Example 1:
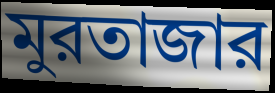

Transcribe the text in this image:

মুরতাজার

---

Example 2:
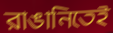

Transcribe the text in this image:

রাঙানিতেই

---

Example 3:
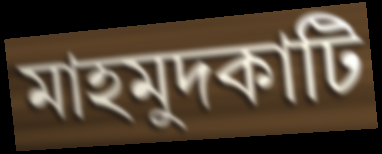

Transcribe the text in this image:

মাহমুদকাটি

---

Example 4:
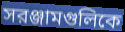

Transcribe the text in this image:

সরঞ্জামগুলিকে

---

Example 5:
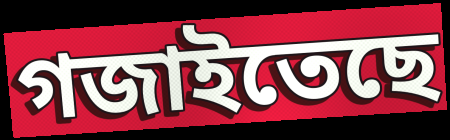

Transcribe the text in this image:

গজাইতেছে